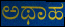
ಅಥಾಹ